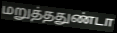
மறுத்ததுண்டா